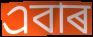
এবাৰ